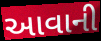
આવાની